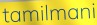
tamilmani